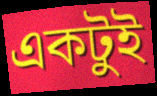
একটুই